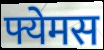
फ्येमस